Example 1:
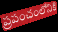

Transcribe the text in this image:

ప్రపంచంలోనికి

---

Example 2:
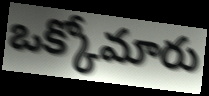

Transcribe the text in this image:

ఒక్కోమారు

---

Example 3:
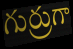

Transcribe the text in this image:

గుర్రుగా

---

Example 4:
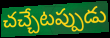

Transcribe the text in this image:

చచ్చేటప్పుడు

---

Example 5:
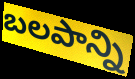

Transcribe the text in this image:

బలపాన్ని